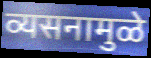
व्यसनामुळे